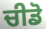
ਚੀਡੋ